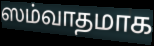
ஸம்வாதமாக